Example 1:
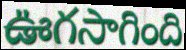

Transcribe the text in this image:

ఊగసాగింది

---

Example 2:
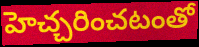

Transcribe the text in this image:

హెచ్చరించటంతో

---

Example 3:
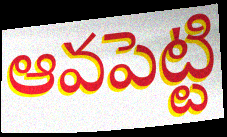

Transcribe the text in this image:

ఆవపెట్టి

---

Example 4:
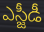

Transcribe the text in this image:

ఎస్జీడీ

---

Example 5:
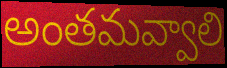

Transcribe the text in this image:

అంతమవ్వాలి